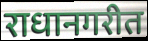
राधानगरीत